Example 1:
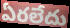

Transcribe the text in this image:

ఏరలేదు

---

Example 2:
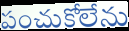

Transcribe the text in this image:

పంచుకోలేను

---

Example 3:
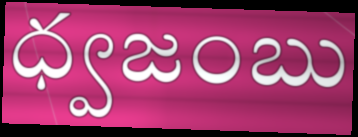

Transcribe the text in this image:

ధ్వజంబు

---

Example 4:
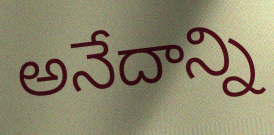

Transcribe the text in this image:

అనేదాన్ని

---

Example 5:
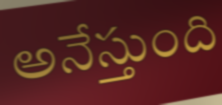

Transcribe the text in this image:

అనేస్తుంది